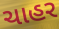
ચાહર